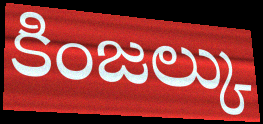
కింజల్కు